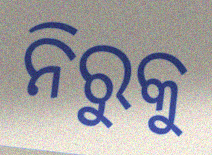
ନିରୁକୁ